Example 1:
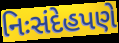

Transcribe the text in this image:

નિઃસંદેહપણે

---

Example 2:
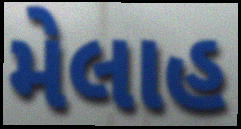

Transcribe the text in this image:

મેલાહ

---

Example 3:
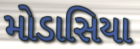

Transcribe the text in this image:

મોડાસિયા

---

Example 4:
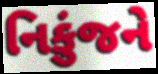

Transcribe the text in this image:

નિકુંજને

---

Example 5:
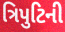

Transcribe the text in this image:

ત્રિપુટિની